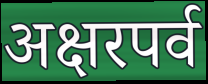
अक्षरपर्व